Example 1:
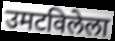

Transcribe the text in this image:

उमटविलेला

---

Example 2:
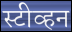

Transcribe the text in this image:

स्टीव्हन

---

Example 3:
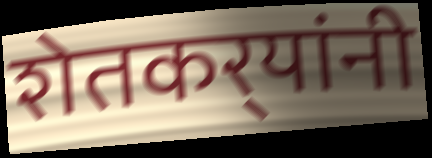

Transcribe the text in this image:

शेतकर्‍यांनी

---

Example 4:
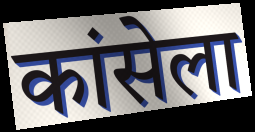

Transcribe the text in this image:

कांसेला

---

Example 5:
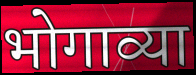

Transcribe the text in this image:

भोगाव्या